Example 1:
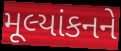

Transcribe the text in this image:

મૂલ્યાંકનને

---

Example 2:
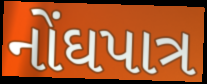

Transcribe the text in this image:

નોંઘપાત્ર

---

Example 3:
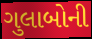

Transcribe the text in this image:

ગુલાબોની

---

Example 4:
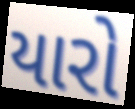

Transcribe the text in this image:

યારો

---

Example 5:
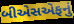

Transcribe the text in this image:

બીએસએફનું